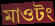
মাওটং